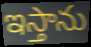
ఇస్తాను